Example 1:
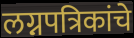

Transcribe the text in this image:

लग्नपत्रिकांचे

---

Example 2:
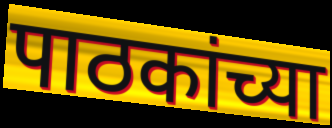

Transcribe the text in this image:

पाठकांच्या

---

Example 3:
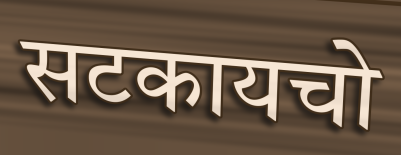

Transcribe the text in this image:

सटकायचो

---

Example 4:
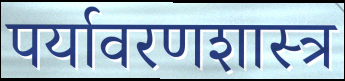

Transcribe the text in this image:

पर्यावरणशास्त्र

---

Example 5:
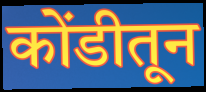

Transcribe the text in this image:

कोंडीतून